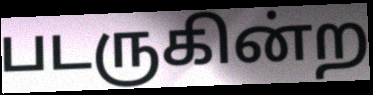
படருகின்ற